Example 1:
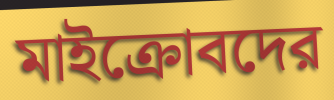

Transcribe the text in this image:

মাইক্রোবদের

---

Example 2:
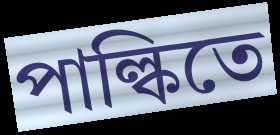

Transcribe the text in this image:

পাল্কিতে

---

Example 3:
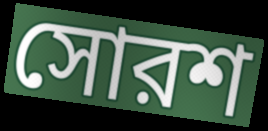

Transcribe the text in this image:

সোরশ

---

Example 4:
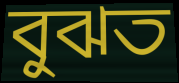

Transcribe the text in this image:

বুঝত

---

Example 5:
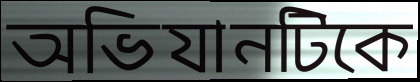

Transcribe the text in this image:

অভিযানটিকে